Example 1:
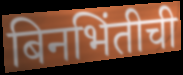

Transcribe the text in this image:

बिनभिंतीची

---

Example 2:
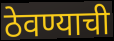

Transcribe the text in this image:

ठेवण्याची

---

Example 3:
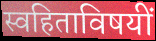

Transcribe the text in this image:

स्वहिताविषयीं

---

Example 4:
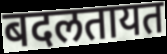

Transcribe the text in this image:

बदलतायत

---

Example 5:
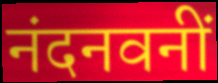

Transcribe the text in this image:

नंदनवनीं